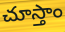
చూస్తాం